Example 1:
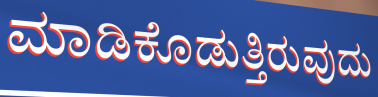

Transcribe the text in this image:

ಮಾಡಿಕೊಡುತ್ತಿರುವುದು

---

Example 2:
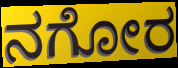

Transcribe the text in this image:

ನಗೋರ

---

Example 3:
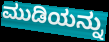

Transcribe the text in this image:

ಮುಡಿಯನ್ನು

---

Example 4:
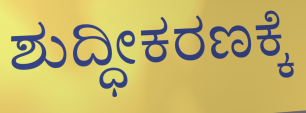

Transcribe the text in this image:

ಶುದ್ಧೀಕರಣಕ್ಕೆ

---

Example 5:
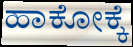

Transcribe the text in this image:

ಹಾಕೋಕ್ಕೆ